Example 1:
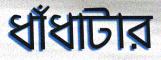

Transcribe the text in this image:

ধাঁধাটার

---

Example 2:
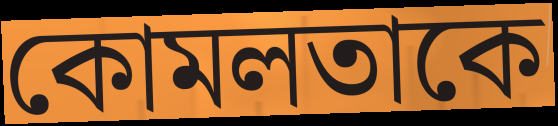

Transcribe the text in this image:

কোমলতাকে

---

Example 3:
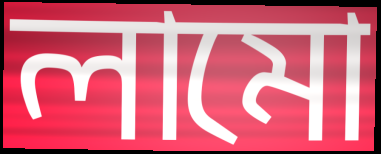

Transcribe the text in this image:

লামো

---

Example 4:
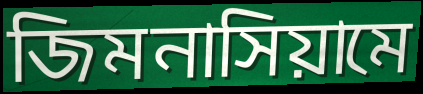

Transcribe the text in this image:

জিমনাসিয়ামে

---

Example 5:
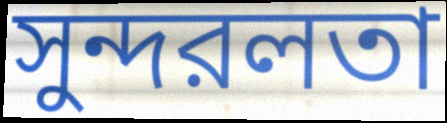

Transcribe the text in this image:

সুন্দরলতা